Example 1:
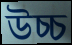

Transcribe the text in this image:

উচ্চ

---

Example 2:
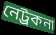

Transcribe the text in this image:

নেট্ৰকনা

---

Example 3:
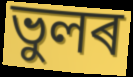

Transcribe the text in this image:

ভুলৰ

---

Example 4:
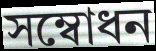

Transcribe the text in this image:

সম্বোধন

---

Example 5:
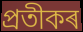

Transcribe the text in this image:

প্ৰতীকৰ